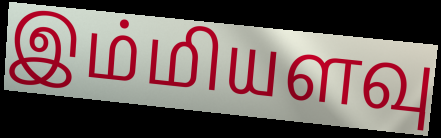
இம்மியளவு